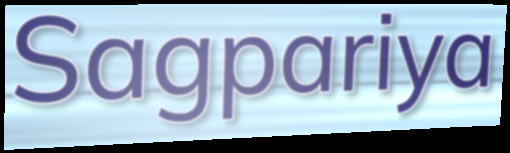
Sagpariya